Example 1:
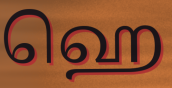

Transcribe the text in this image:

ஹெ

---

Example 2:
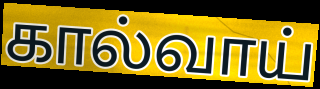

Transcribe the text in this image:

கால்வாய்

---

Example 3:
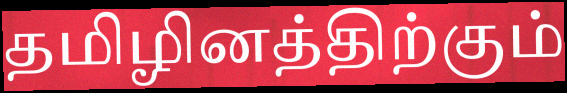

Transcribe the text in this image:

தமிழினத்திற்கும்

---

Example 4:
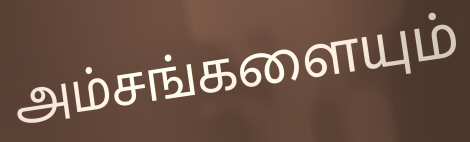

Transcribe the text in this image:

அம்சங்களையும்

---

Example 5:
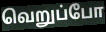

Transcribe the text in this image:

வெறுப்போ